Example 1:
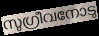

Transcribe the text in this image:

സുഗ്രീവനോടു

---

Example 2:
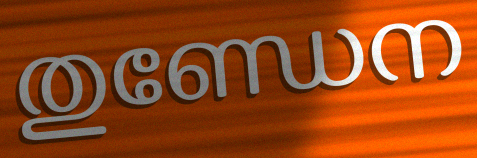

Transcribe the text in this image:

തുണ്ഡേന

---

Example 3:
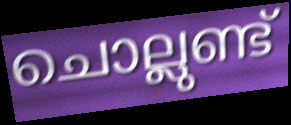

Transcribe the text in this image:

ചൊല്ലുണ്ട്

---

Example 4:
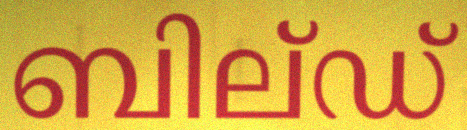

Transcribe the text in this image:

ബില്ഡ്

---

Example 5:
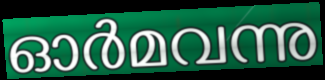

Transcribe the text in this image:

ഓർമവന്നു